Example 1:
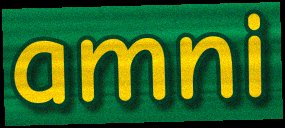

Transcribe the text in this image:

amni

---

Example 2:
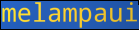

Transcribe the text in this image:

melampaui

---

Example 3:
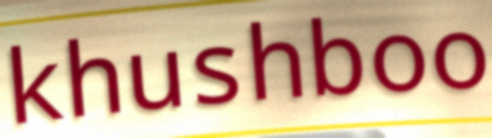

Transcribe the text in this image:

khushboo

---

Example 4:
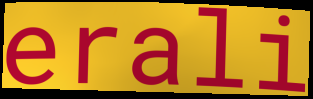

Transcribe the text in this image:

erali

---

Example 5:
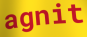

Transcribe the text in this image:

agnit